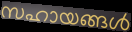
സഹായങ്ങൾ